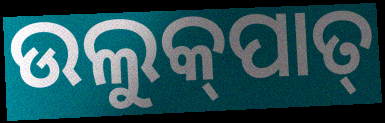
ଉଲୁକ୍‌ପାତ୍